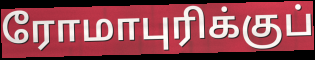
ரோமாபுரிக்குப்